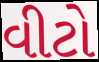
વીટો